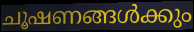
ചൂഷണങ്ങൾക്കും